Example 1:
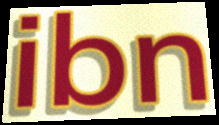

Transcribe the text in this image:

ibn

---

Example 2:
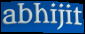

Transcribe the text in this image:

abhijit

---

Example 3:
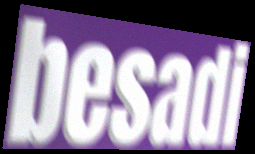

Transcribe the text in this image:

besadi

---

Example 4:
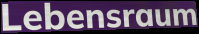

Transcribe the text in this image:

Lebensraum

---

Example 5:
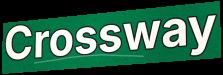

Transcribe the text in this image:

Crossway